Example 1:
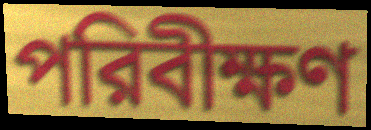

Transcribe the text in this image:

পরিবীক্ষণ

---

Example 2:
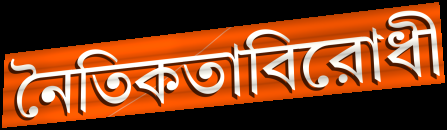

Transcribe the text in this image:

নৈতিকতাবিরোধী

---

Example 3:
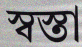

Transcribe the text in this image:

স্বস্তা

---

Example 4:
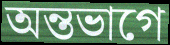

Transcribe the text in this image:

অন্তভাগে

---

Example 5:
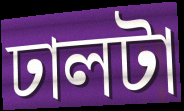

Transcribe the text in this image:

ঢালটা